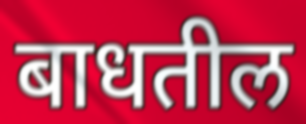
बाधतील